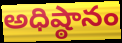
అధిష్ఠానం